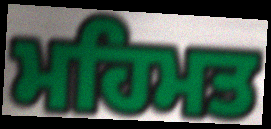
ਮਹਿਮਤ